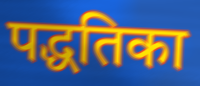
पद्धतिका